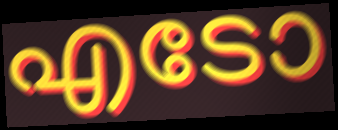
എടോ